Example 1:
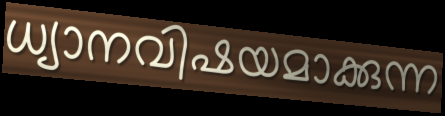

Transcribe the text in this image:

ധ്യാനവിഷയമാക്കുന്ന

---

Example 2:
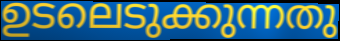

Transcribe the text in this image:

ഉടലെടുക്കുന്നതു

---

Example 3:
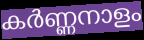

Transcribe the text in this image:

കർണ്ണനാളം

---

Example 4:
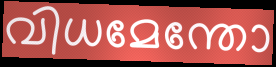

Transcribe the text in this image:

വിധമേന്തോ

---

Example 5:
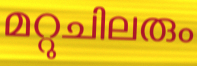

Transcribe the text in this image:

മറ്റുചിലരും